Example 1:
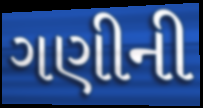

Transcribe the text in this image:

ગણીની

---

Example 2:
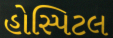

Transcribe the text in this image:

હોસ્પિટલ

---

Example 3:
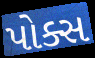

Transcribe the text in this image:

પોક્સ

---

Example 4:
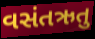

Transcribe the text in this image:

વસંતઋતુ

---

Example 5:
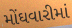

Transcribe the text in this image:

મોંઘવારીમાં